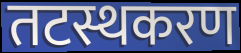
तटस्थकरण